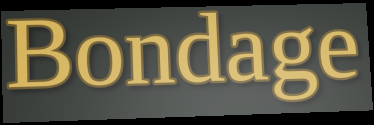
Bondage